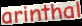
arinthal